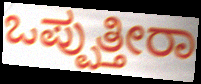
ಒಪ್ಪುತ್ತೀರಾ